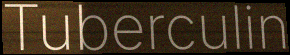
Tuberculin